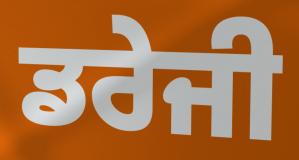
ਡਰੇਜੀ